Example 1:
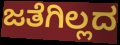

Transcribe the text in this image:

ಜತೆಗಿಲ್ಲದ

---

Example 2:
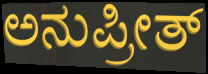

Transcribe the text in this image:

ಅನುಪ್ರೀತ್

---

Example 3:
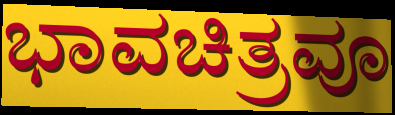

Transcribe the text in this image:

ಭಾವಚಿತ್ರವೂ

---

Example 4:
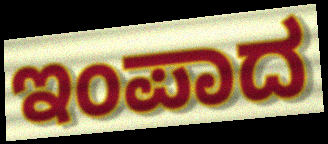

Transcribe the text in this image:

ಇಂಪಾದ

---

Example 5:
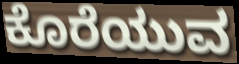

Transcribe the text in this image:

ಕೊರೆಯುವ